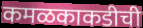
कमळकाकडीची